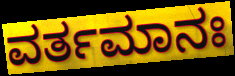
ವರ್ತಮಾನಃ